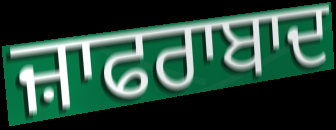
ਜ਼ਾਫਰਾਬਾਦ